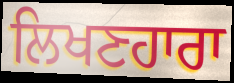
ਲਿਖਣਹਾਰਾ